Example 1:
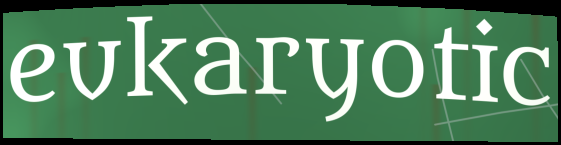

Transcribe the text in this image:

eukaryotic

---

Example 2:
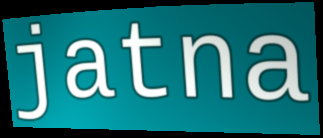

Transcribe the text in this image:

jatna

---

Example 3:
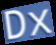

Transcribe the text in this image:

Dx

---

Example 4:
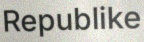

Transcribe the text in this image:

Republike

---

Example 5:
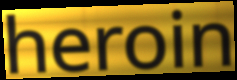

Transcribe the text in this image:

heroin